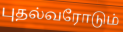
புதல்வரோடும்